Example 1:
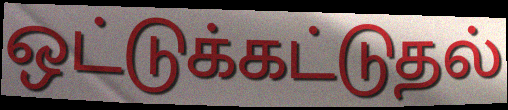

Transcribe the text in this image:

ஒட்டுக்கட்டுதல்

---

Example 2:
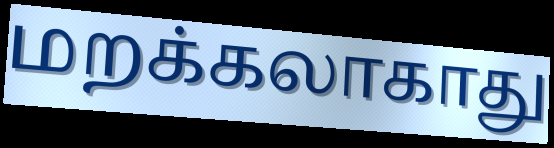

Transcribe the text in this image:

மறக்கலாகாது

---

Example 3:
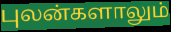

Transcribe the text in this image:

புலன்களாலும்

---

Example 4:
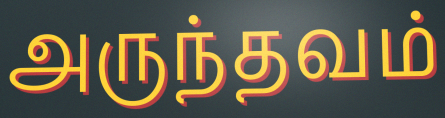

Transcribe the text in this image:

அருந்தவம்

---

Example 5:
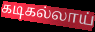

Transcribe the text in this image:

கடிகல்லாய்